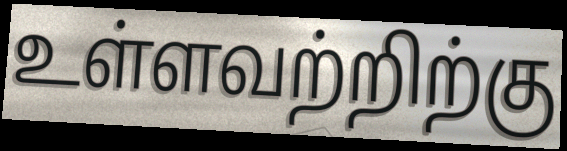
உள்ளவற்றிற்கு